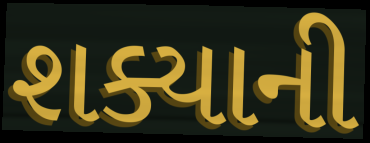
શક્યાની